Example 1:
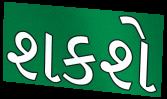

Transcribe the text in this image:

શકશે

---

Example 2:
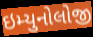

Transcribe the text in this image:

ઇમ્યુનોલોજી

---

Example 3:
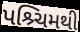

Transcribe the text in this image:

પશ્ર્ચિમથી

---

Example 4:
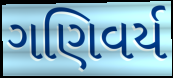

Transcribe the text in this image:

ગણિવર્ય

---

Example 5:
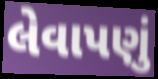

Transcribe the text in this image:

લેવાપણું